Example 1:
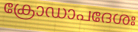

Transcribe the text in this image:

ക്രോഡാപദേശഃ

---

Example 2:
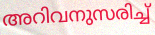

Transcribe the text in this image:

അറിവനുസരിച്ച്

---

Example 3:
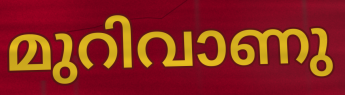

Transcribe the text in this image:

മുറിവാണു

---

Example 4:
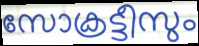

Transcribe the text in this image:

സോക്രട്ടീസും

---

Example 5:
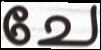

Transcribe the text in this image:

ചേ